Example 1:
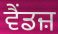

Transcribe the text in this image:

ਵੈਂਡਜ਼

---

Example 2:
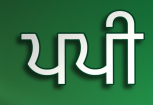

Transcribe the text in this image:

ਪਪੀ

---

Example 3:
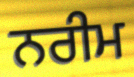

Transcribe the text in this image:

ਨਰੀਮ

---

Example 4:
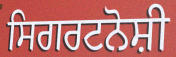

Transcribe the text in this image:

ਸਿਗਰਟਨੋਸ਼ੀ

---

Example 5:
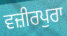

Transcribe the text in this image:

ਵਜ਼ੀਰਪੁਰਾ